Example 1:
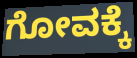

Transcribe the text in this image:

ಗೋವಕ್ಕೆ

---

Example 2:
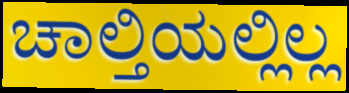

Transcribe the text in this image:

ಚಾಲ್ತಿಯಲ್ಲಿಲ್ಲ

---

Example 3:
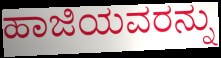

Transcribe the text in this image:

ಹಾಜಿಯವರನ್ನು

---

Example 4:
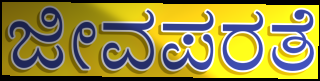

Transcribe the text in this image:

ಜೀವಪರತೆ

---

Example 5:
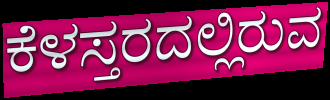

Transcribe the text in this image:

ಕೆಳಸ್ತರದಲ್ಲಿರುವ